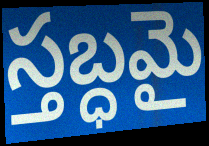
స్తబ్ధమై